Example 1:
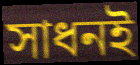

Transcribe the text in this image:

সাধনই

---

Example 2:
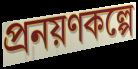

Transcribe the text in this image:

প্রনয়ণকল্পে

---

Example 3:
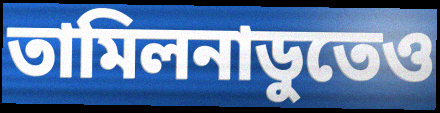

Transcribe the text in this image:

তামিলনাডুতেও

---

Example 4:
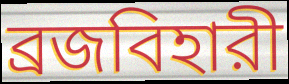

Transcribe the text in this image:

ব্রজবিহারী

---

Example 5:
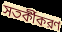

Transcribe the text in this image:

সতর্কীকরণ